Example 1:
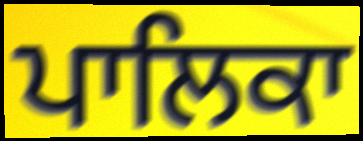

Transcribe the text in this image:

ਪਾਲਿਕਾ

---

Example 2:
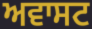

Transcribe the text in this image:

ਅਵਾਸਟ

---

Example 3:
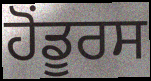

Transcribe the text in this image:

ਹੋਂਡੂਰਸ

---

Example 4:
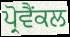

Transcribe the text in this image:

ਪ੍ਰੋਵੈਂਕਲ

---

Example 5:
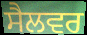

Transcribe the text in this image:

ਸੈਲਵਰ